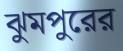
ঝুমপুরের